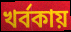
খর্বকায়